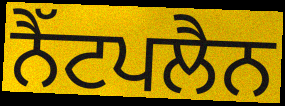
ਨੈੱਟਪਲੈਨ